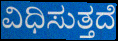
ವಿಧಿಸುತ್ತದೆ